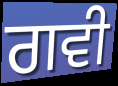
ਗਵੀ